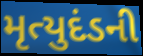
મૃત્યુદંડની